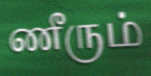
ணீரும்